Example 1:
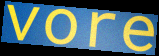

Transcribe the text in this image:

vore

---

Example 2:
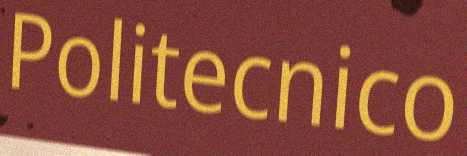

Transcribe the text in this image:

Politecnico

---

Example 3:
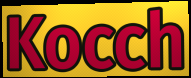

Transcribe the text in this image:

Kocch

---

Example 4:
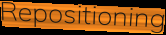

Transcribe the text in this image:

Repositioning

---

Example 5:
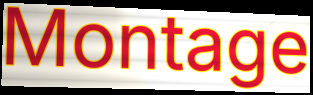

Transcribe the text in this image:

Montage